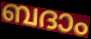
ബദാം